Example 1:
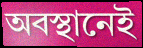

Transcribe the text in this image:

অবস্থানেই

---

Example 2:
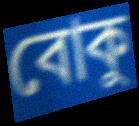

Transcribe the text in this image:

বোকু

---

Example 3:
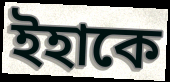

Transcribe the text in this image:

ইহাকে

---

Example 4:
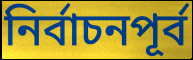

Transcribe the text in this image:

নির্বাচনপূর্ব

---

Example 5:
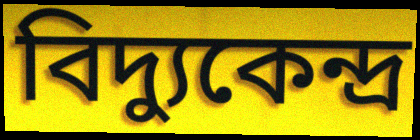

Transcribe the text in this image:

বিদ্যুকেন্দ্র